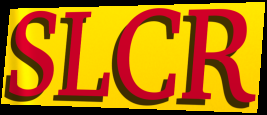
SLCR